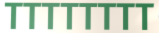
TTTTTTTT